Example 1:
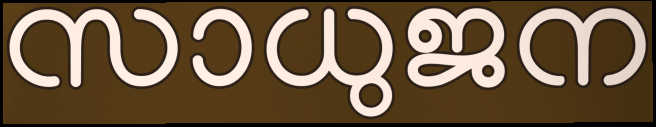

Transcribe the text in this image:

സാധുജന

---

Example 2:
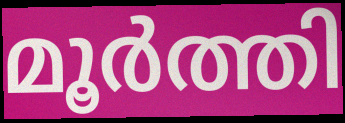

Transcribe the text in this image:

മൂർത്തി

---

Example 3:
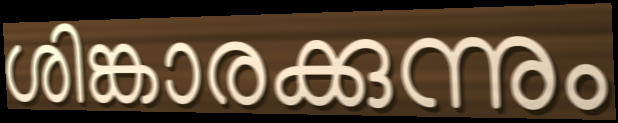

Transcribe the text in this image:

ശിങ്കാരക്കുന്നും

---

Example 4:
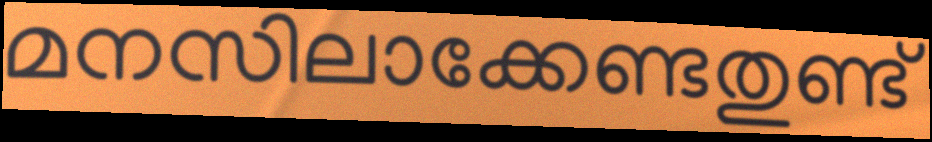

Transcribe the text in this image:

മനസിലാക്കേണ്ടതുണ്ട്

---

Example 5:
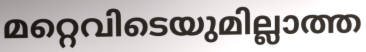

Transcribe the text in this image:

മറ്റെവിടെയുമില്ലാത്ത